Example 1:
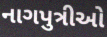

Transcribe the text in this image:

નાગપુત્રીઓ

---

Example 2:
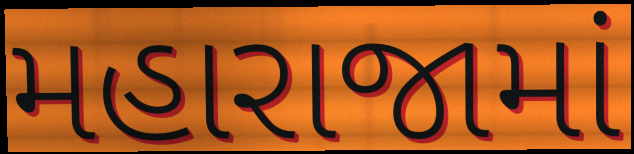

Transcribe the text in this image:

મહારાજામાં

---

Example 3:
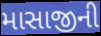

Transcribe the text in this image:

માસાજીની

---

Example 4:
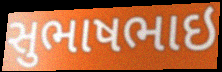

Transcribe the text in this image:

સુભાષભાઇ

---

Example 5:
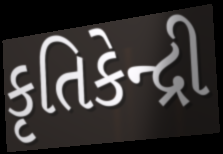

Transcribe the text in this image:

કૃતિકેન્દ્રી